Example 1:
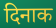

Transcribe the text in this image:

दिनाक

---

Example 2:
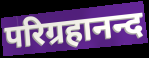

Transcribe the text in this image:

परिग्रहानन्द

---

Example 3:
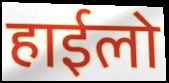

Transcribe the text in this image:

हाईलो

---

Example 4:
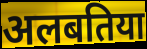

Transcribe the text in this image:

अलबतिया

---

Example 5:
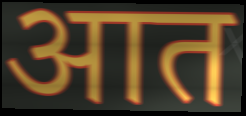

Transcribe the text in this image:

आत